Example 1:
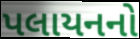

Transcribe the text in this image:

પલાયનનો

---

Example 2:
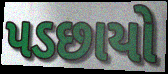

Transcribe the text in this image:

પડછાયો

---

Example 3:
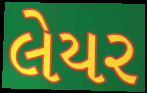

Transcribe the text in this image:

લેયર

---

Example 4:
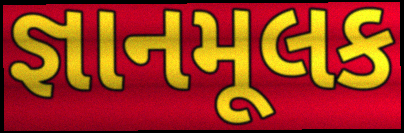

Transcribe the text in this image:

જ્ઞાનમૂલક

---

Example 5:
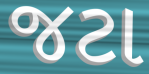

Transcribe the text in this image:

જટા